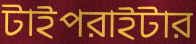
টাইপরাইটার